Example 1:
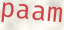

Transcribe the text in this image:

paam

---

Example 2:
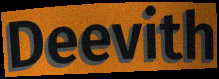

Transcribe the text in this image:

Deevith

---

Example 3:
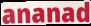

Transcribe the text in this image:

ananad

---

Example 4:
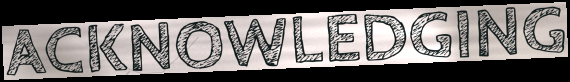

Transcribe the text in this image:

ACKNOWLEDGING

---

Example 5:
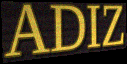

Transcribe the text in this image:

ADIZ